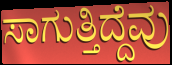
ಸಾಗುತ್ತಿದ್ದೆವು